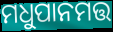
ମଧୁପାନମତ୍ତ